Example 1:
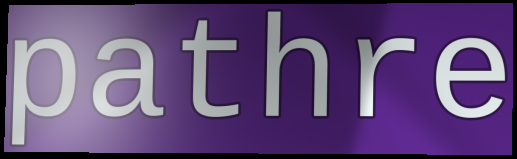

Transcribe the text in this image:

pathre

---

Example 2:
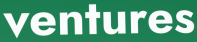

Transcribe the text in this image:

ventures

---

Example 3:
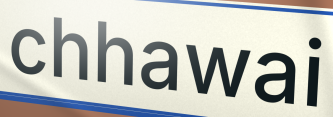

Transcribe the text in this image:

chhawai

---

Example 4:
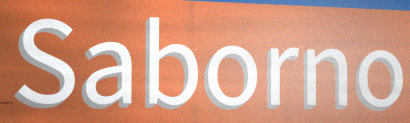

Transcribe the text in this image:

Saborno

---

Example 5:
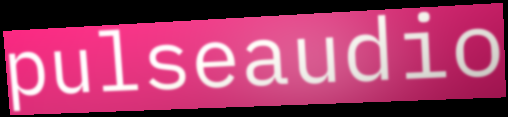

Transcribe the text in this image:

pulseaudio